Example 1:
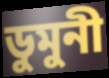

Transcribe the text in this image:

ডুমুনী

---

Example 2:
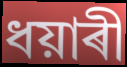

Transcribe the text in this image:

ধয়াৰী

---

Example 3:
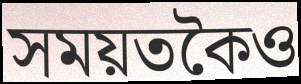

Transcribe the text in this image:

সময়তকৈও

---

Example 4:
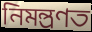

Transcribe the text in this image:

নিমন্ত্ৰণত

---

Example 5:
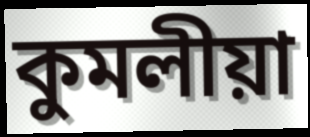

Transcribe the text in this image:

কুমলীয়া